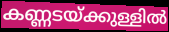
കണ്ണടയ്ക്കുള്ളിൽ